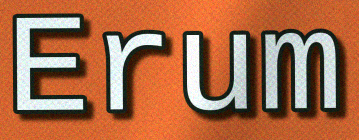
Erum